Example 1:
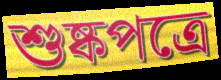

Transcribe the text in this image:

শুষ্কপত্রে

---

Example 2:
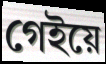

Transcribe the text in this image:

গেইয়ে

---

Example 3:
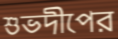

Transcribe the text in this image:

শুভদীপের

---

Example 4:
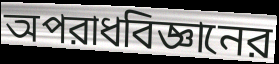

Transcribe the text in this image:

অপরাধবিজ্ঞানের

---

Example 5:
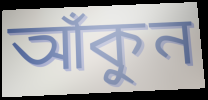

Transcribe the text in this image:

আঁকুন